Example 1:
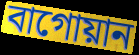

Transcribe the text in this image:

বাগোয়ান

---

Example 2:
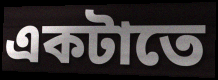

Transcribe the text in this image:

একটাতে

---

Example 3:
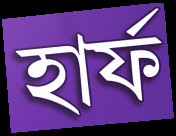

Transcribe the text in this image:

হার্ফ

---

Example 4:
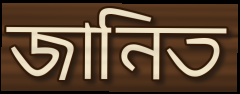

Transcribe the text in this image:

জানিত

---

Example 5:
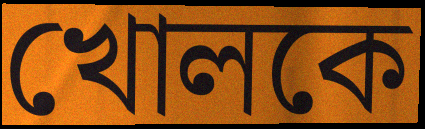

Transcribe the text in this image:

খোলকে